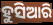
ହୁସିଆରି